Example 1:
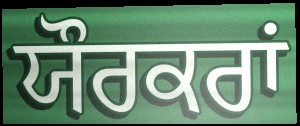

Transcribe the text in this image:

ਯੌਰਕਰਾਂ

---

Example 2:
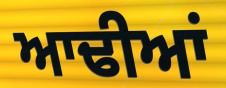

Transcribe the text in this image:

ਆਢੀਆਂ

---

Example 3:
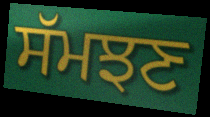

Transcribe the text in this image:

ਸੱਮਝਣ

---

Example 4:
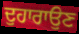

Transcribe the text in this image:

ਦੁਹਾਰਾਉਣ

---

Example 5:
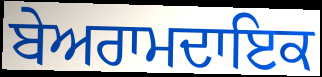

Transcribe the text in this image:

ਬੇਅਰਾਮਦਾਇਕ